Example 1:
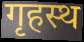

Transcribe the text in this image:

गृहस्थ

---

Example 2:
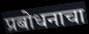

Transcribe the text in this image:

प्रबोधनाचा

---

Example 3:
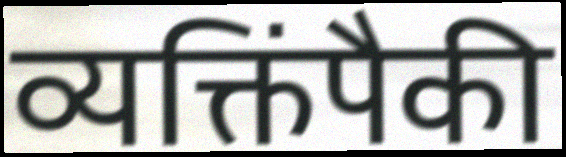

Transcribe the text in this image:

व्यक्तिंपैकी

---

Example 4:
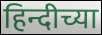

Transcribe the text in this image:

हिन्दीच्या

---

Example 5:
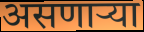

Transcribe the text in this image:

असणार्‍या